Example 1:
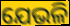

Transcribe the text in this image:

ଯେଭଳି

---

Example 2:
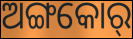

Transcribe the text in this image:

ଅଙ୍ଗକୋର୍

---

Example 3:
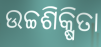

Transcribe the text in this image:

ଉଚ୍ଚଶିକ୍ଷିତା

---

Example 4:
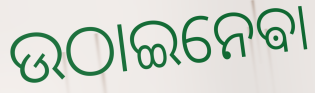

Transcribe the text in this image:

ଉଠାଇନେଵା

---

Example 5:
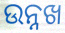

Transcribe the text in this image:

ଉନ୍ନଖ